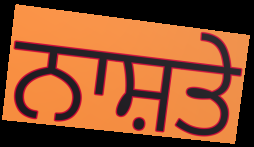
ਨਾਸ਼ਤੇ